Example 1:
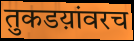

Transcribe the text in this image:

तुकडय़ांवरच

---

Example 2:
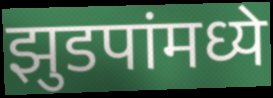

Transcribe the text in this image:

झुडपांमध्ये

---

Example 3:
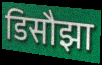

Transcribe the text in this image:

डिसौझा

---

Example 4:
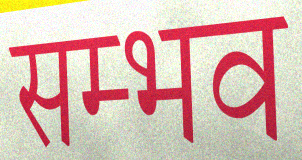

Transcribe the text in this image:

सम्भव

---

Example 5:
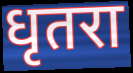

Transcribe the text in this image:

धृतरा